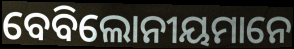
ବେବିଲୋନୀୟମାନେ